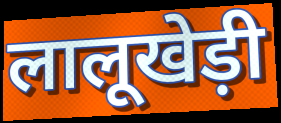
लालूखेड़ी